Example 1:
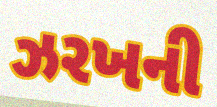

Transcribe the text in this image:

ઝરખની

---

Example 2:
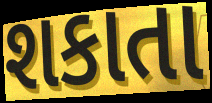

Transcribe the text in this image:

શકાતા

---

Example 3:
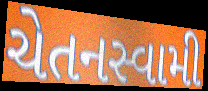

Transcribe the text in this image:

ચેતનસ્વામી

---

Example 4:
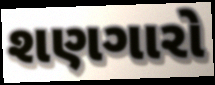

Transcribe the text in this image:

શણગારો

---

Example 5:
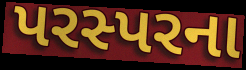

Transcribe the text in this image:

પરસ્પરના